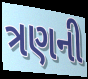
ત્રણની